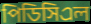
পিডিসিএল